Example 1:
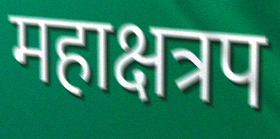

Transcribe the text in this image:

महाक्षत्रप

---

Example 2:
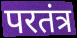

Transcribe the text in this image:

परतंत्र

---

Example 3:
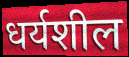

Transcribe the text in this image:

धर्यशील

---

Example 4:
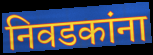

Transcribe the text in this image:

निवडकांना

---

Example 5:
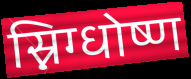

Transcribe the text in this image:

स्निग्धोष्ण